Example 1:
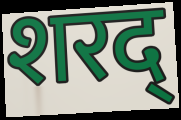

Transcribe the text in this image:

शरद्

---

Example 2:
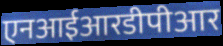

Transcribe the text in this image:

एनआईआरडीपीआर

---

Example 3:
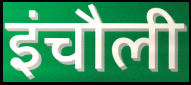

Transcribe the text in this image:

इंचौली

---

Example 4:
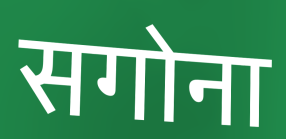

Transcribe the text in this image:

सगोना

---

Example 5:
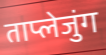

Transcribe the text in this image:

ताप्लेजुंग